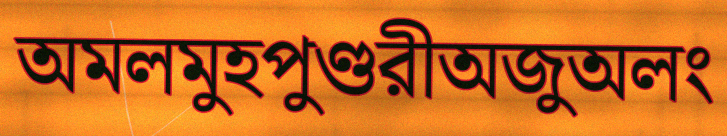
অমলমুহপুণ্ডরীঅজুঅলং